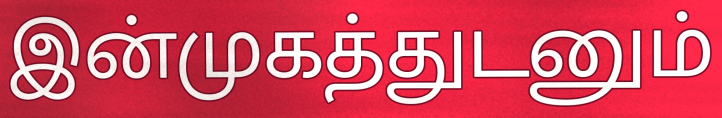
இன்முகத்துடனும்